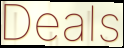
Deals